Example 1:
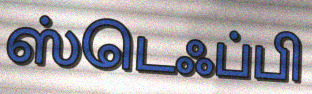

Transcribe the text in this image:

ஸ்டெஃப்பி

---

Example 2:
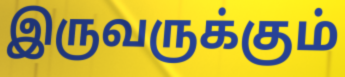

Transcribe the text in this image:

இருவருக்கும்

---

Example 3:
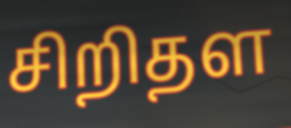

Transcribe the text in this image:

சிறிதள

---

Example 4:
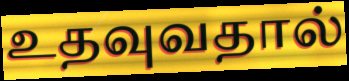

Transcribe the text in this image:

உதவுவதால்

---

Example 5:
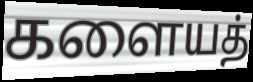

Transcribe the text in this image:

களையத்